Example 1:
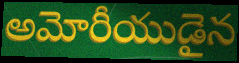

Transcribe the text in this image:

అమోరీయుడైన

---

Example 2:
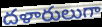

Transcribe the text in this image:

దళారులుగా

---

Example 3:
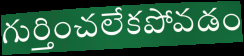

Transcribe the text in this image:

గుర్తించలేకపోవడం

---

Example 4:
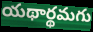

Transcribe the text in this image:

యథార్థమగు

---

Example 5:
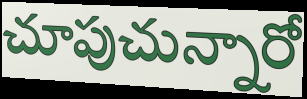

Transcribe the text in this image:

చూపుచున్నారో